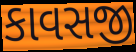
કાવસજી